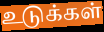
உடுக்கள்